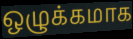
ஒழுக்கமாக